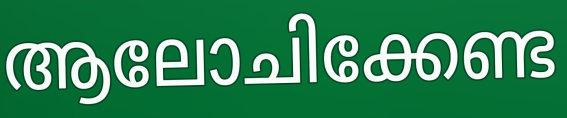
ആലോചിക്കേണ്ട